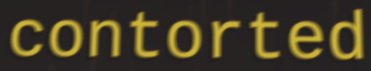
contorted